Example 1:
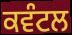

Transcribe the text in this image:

ਕਵੰਟਲ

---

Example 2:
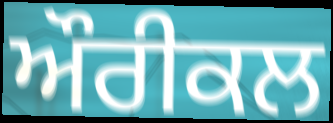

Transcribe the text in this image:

ਔਰੀਕਲ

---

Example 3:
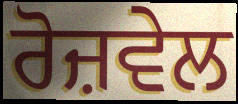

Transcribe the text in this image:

ਰੋਜ਼ਵੇਲ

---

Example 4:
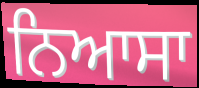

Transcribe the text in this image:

ਨਿਆਸਾ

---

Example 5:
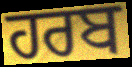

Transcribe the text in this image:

ਹਰਬ